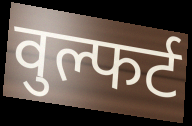
वुल्फर्ट